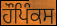
ਹੌਪਿੰਕਸ